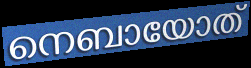
നെബായോത്